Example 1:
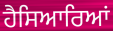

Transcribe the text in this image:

ਹੈਸਿਆਰਿਆਂ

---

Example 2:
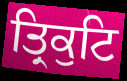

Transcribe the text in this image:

ਤ੍ਰਿਕੁਟਿ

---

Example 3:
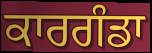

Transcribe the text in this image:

ਕਾਰਗੰਡਾ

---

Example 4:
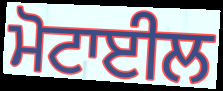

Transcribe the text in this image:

ਮੋਟਾਈਲ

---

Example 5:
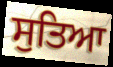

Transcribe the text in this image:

ਸੁਤਿਆ